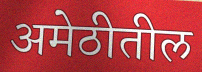
अमेठीतील